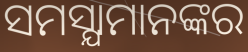
ସମସ୍ଯାମାନଙ୍କର